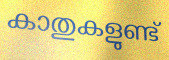
കാതുകളുണ്ട്